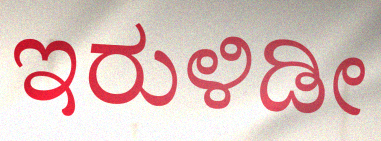
ಇರುಳಿಡೀ